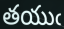
తయుఁ